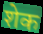
शेक